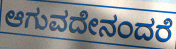
ಆಗುವದೇನಂದರೆ